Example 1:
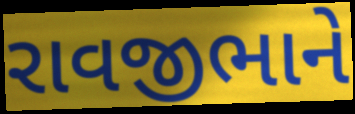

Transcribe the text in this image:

રાવજીભાને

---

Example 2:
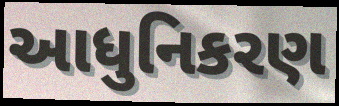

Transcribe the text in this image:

આધુનિકરણ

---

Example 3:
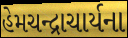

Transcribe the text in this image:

હેમચન્દ્રાચાર્યના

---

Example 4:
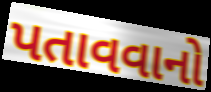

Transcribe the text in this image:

પતાવવાનો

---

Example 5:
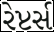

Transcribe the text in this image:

રેપ્ટર્સ